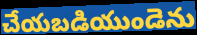
చేయబడియుండెను